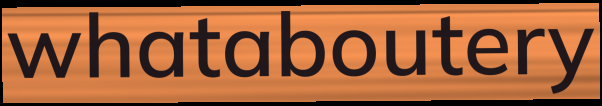
whataboutery